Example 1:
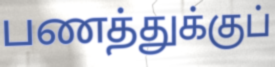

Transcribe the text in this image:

பணத்துக்குப்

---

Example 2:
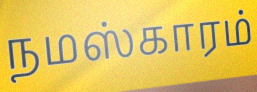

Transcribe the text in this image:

நமஸ்காரம்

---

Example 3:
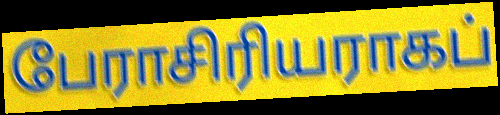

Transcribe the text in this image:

பேராசிரியராகப்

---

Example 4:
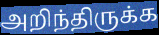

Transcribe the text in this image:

அறிந்திருக்க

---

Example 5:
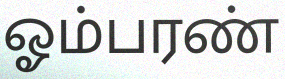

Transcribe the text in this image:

ஓம்பரண்